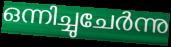
ഒന്നിച്ചുചേർന്നു